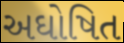
અઘોષિત